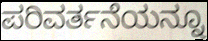
ಪರಿವರ್ತನೆಯನ್ನೂ